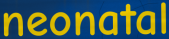
neonatal